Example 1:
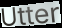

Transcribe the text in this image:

Utter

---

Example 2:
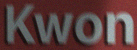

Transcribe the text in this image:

Kwon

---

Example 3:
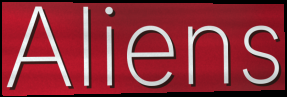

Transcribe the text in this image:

Aliens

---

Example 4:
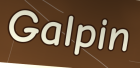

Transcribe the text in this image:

Galpin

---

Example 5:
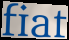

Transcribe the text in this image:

fiat